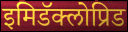
इमिडॅक्लोप्रिड